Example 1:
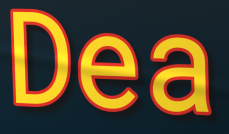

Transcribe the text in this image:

Dea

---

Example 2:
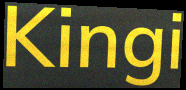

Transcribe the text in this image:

Kingi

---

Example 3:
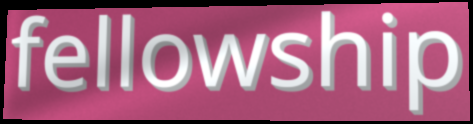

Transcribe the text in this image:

fellowship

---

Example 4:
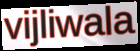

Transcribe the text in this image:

vijliwala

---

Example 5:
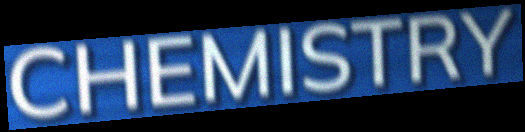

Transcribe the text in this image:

CHEMISTRY